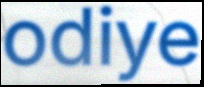
odiye